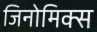
जिनोमिक्स